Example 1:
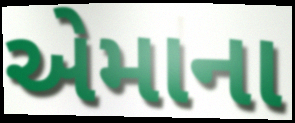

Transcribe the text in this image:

એમાના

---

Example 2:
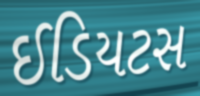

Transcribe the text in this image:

ઈડિયટસ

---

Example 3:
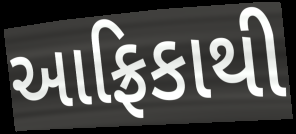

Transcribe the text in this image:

આફ્રિકાથી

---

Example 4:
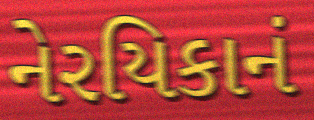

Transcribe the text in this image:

નેરયિકાનં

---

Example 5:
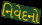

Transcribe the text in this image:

નિવેદનો